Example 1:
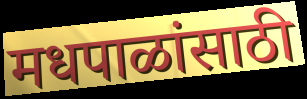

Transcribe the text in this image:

मधपाळांसाठी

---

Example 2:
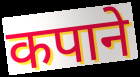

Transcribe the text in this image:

कपाने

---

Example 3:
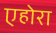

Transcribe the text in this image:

एहोरा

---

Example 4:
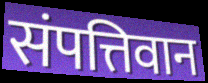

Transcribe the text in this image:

संपत्तिवान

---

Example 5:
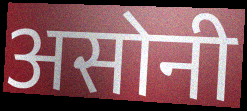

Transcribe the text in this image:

असोनी